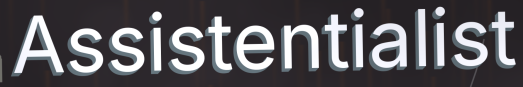
Assistentialist